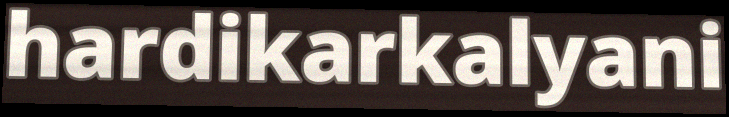
hardikarkalyani